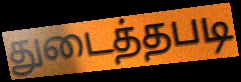
துடைத்தபடி